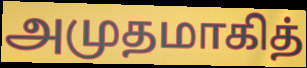
அமுதமாகித்